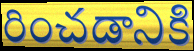
రించడానికి